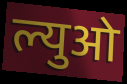
ल्युओ